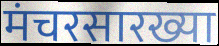
मंचरसारख्या